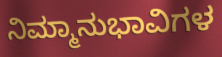
ನಿಮ್ಮಾನುಭಾವಿಗಳ